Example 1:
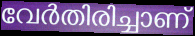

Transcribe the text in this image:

വേർതിരിച്ചാണ്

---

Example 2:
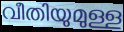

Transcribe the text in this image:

വീതിയുമുള്ള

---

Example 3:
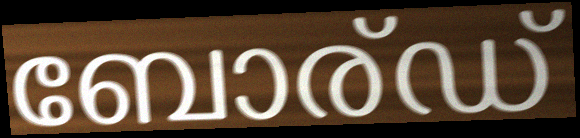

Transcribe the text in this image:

ബോര്ഡ്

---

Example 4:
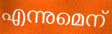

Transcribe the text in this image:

എന്നുമെന്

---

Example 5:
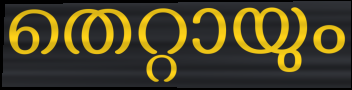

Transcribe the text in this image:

തെറ്റായും